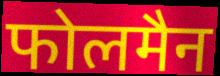
फोलमैन